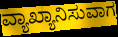
ವ್ಯಾಖ್ಯಾನಿಸುವಾಗ